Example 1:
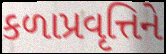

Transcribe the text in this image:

કળાપ્રવૃત્તિને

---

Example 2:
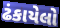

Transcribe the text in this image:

ઢંકાયેલો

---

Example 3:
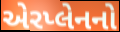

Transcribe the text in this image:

એરપ્લેનનો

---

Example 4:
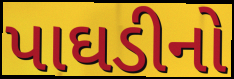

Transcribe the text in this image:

પાઘડીનો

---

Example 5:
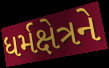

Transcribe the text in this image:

ધર્મક્ષેત્રને